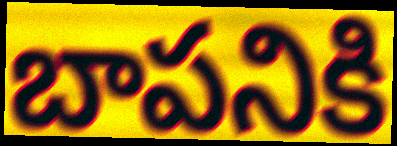
బాపనికి